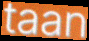
taan